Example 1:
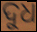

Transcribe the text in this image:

ଦୁଧ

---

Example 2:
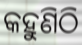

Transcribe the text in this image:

କହୁଣିଠି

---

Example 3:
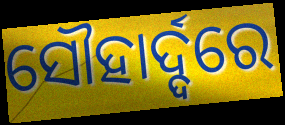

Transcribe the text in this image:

ସୌହାର୍ଦ୍ଦରେ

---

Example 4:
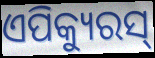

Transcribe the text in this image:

ଏପିକ୍ୟୁରସ୍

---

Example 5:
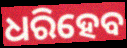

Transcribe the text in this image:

ଧରିହେବ